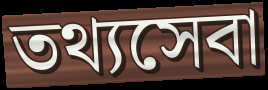
তথ্যসেবা